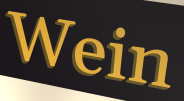
Wein